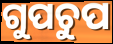
ଗୁପଚୁପ